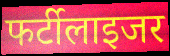
फर्टीलाइजर